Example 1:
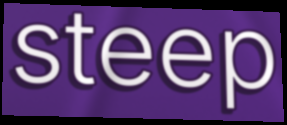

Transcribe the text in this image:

steep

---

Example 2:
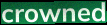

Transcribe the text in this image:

crowned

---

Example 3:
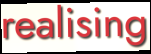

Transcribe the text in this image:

realising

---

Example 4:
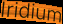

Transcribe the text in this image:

Iridium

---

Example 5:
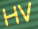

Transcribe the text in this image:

HV